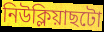
নিউক্লিয়াছটো